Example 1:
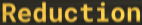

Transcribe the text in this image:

Reduction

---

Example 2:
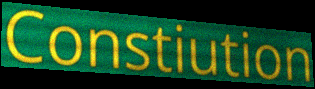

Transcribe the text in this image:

Constiution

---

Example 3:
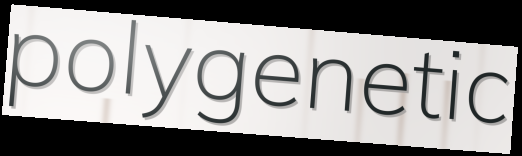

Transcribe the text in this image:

polygenetic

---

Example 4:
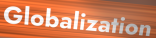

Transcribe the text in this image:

Globalization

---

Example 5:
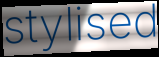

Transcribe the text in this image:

stylised